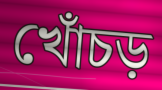
খোঁচড়